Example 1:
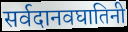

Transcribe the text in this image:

सर्वदानवघातिनी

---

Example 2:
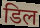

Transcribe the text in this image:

डिल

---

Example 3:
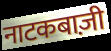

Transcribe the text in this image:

नाटकबाज़ी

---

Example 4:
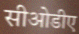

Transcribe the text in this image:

सीओडीए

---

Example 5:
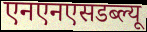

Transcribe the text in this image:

एनएनएसडब्ल्यू